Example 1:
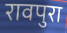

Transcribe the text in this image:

रावपुरा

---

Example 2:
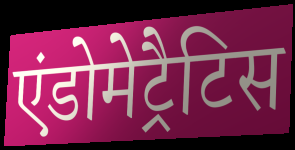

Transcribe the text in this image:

एंडोमेट्रैटिस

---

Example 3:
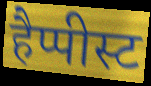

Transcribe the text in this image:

हैप्पीस्ट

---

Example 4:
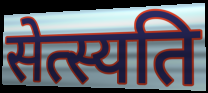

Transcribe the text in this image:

सेत्स्यति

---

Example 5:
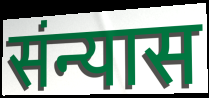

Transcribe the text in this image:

संन्यास